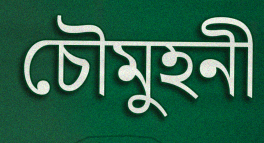
চৌমুহনী